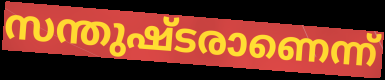
സന്തുഷ്ടരാണെന്ന്